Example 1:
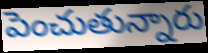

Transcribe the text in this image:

పెంచుతున్నారు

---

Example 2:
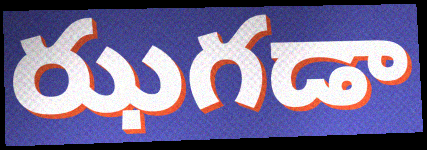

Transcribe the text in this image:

ఝగడా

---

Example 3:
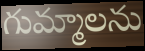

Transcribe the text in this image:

గుమ్మాలను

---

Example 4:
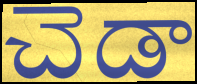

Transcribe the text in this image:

చెడా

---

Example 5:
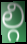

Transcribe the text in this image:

ల్గి